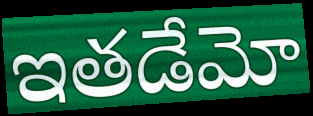
ఇతడేమో